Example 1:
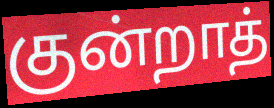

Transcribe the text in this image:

குன்றாத்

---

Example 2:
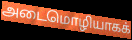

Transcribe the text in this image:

அடைமொழியாகக்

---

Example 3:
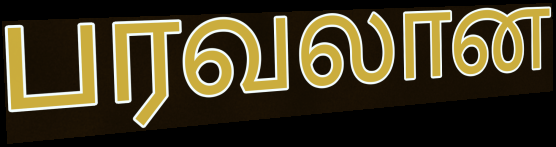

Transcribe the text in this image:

பரவலான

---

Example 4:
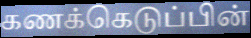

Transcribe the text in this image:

கணக்கெடுப்பின்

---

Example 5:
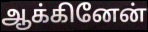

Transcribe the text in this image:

ஆக்கினேன்